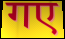
गए